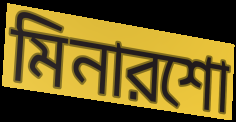
মিনারশো